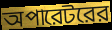
অপারেটরের